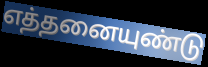
எத்தனையுண்டு